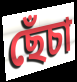
ছেঁচা